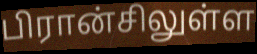
பிரான்சிலுள்ள